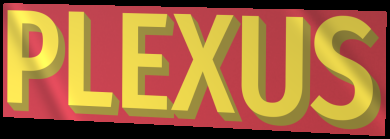
PLEXUS